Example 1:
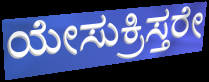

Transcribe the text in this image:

ಯೇಸುಕ್ರಿಸ್ತರೇ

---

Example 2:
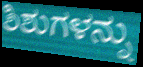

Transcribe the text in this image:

ಶಿಶುಗಳನ್ನು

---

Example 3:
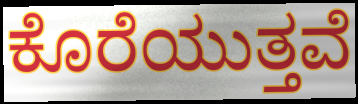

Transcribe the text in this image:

ಕೊರೆಯುತ್ತವೆ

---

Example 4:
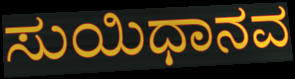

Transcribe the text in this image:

ಸುಯಿಧಾನವ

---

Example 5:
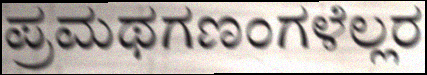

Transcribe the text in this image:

ಪ್ರಮಥಗಣಂಗಳೆಲ್ಲರ